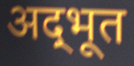
अद्‌भूत